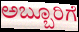
ಅಬ್ಬೂರಿಗೆ